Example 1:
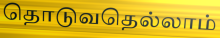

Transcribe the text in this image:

தொடுவதெல்லாம்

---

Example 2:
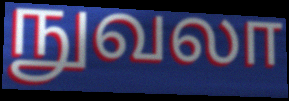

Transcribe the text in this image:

நுவலா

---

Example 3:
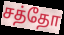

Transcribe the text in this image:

சத்தோ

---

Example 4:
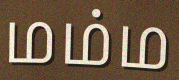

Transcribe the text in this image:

மம்ம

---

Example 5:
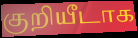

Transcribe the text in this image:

குறியீடாக